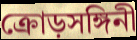
ক্রোড়সঙ্গিনী